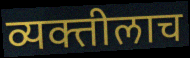
व्यक्तीलाच